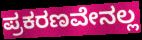
ಪ್ರಕರಣವೇನಲ್ಲ